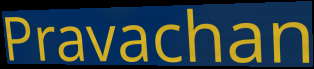
Pravachan